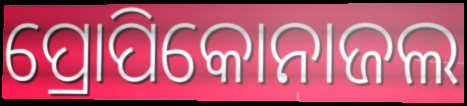
ପ୍ରୋପିକୋନାଜଲ